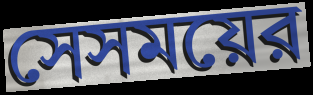
সেসময়ের